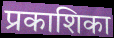
प्रकाशिका